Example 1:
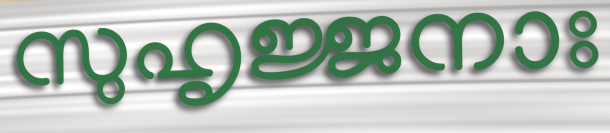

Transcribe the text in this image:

സുഹൃജ്ജനാഃ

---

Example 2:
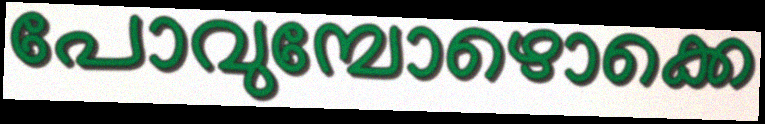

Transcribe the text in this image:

പോവുമ്പോഴൊക്കെ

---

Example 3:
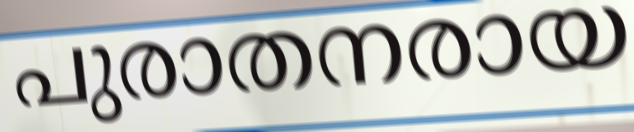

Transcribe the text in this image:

പുരാതനരായ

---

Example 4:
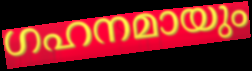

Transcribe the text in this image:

ഗഹനമായും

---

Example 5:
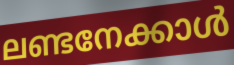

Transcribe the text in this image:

ലണ്ടനേക്കാൾ